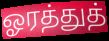
ஓரத்துத்